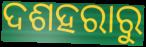
ଦଶହରାରୁ